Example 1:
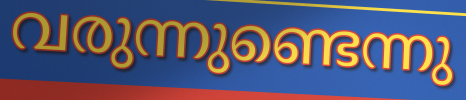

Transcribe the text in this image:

വരുന്നുണ്ടെന്നു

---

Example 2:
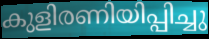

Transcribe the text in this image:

കുളിരണിയിപ്പിച്ചു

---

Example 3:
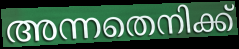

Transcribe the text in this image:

അന്നതെനിക്ക്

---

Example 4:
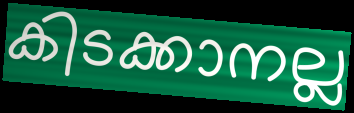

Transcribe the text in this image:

കിടക്കാനല്ല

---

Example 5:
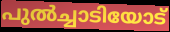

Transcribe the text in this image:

പുൽച്ചാടിയോട്